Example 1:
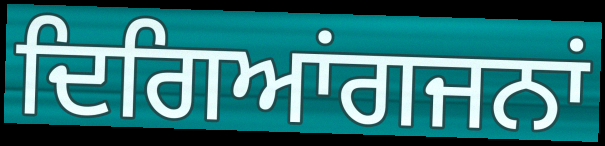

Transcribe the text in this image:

ਦਿਗਿਆਂਗਜਨਾਂ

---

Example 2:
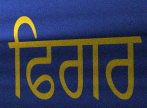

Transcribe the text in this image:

ਫਿਗਰ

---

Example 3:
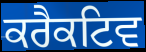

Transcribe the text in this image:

ਕਰੈਕਟਿਵ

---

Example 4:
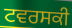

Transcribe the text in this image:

ਟਵਰਸਕੀ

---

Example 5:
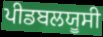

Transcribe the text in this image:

ਪੀਡਬਲਯੂਸੀ